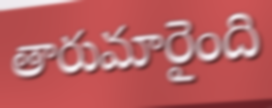
తారుమారైంది